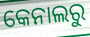
କେନାଲରୁ